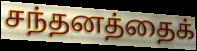
சந்தனத்தைக்